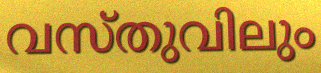
വസ്തുവിലും